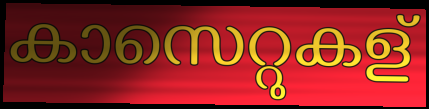
കാസെറ്റുകള്